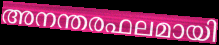
അനന്തരഫലമായി